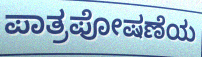
ಪಾತ್ರಪೋಷಣೆಯ